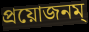
প্রয়োজনম্